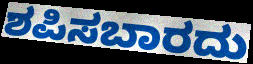
ಶಪಿಸಬಾರದು